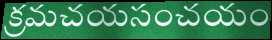
క్రమచయసంచయం